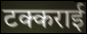
टक्कराई